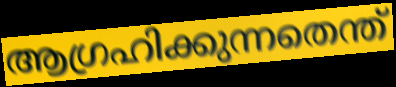
ആഗ്രഹിക്കുന്നതെന്ത്